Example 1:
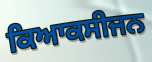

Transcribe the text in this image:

ਕਿਆਕਸੀਜਨ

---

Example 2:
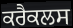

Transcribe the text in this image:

ਕਰੈਕਲਸ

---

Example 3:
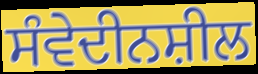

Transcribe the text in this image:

ਸੰਵੇਦੀਨਸ਼ੀਲ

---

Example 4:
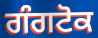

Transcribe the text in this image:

ਗੰਗਟੋਕ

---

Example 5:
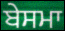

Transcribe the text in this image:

ਬੇਸਮਾ